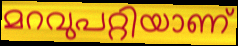
മറവുപറ്റിയാണ്